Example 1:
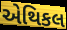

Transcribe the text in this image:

એથિકલ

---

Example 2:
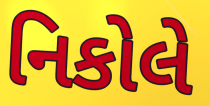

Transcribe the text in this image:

નિકોલે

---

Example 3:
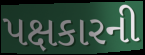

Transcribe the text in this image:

પક્ષકારની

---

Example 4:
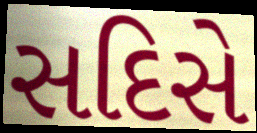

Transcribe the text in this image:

સદિસે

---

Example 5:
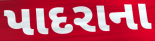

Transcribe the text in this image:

પાદરાના